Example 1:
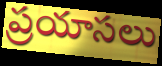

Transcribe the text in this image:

ప్రయాసలు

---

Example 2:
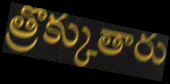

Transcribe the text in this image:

త్రొక్కుతారు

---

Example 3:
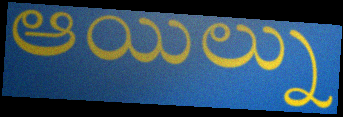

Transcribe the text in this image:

ఆయిల్ను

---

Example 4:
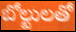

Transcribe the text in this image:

బోల్టులతో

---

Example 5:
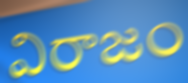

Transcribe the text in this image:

విరాజం